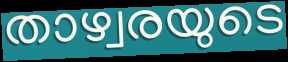
താഴ്വരയുടെ